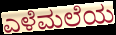
ಎಳೆಮಲೆಯ